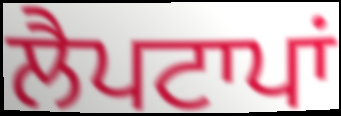
ਲੈਪਟਾਪਾਂ